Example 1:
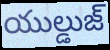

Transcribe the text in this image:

యుల్డుజ్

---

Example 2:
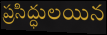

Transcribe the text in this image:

ప్రసిద్ధులయిన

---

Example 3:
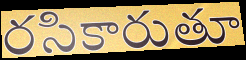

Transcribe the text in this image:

రసికారుతూ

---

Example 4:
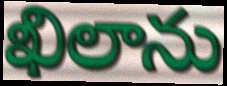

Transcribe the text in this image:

ఖిలాను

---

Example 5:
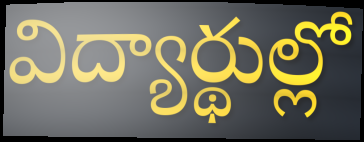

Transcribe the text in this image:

విద్యార్థుల్లో